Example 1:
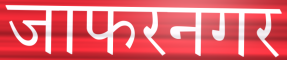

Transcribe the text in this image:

जाफरनगर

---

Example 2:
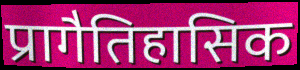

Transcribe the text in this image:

प्रागैतिहासिक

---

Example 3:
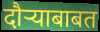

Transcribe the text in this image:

दौऱ्याबाबत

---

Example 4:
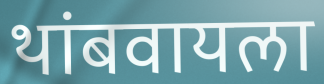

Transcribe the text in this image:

थांबवायला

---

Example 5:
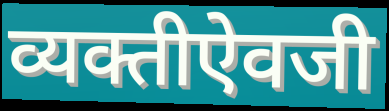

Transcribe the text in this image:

व्यक्तीऐवजी